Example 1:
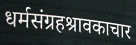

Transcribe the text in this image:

धर्मसंग्रहश्रावकाचार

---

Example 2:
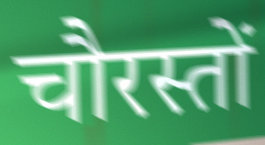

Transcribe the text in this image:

चौरस्तों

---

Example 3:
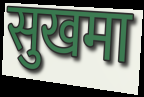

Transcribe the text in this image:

सुखमा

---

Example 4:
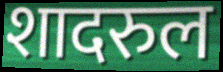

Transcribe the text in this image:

शादरुल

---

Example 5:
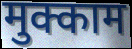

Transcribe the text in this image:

मुक्काम